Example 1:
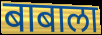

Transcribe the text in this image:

बाबाला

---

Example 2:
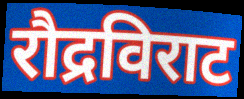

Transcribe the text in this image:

रौद्रविराट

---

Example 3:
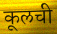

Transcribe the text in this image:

कूलची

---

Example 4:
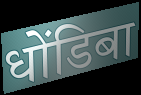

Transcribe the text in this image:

धोंडिबा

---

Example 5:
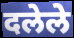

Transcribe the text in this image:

दलेले